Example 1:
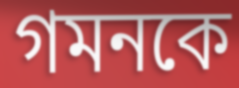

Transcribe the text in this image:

গমনকে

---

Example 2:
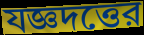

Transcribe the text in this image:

যজ্ঞদত্তের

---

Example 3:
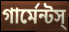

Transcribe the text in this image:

গার্মেন্টস্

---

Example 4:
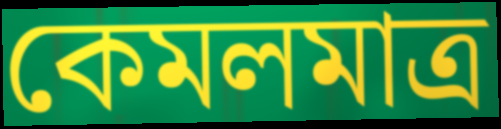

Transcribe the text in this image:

কেমলমাত্র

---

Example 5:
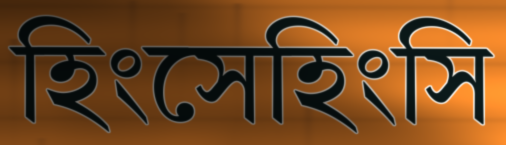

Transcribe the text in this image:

হিংসেহিংসি